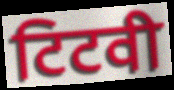
टिटवी